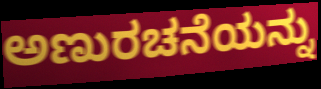
ಅಣುರಚನೆಯನ್ನು